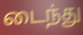
டைந்து